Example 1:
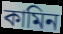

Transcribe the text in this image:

কামিন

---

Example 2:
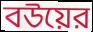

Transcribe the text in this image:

বউয়ের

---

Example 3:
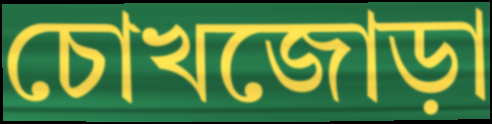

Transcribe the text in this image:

চোখজোড়া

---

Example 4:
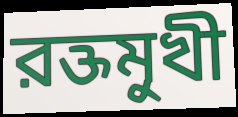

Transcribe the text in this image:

রক্তমুখী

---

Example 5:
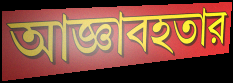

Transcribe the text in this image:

আজ্ঞাবহতার